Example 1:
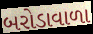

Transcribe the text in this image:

બરોડાવાળા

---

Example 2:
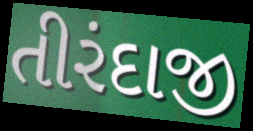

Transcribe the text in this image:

તીરંદાજી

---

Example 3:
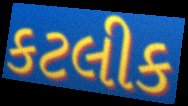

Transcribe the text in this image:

કટલીક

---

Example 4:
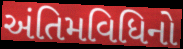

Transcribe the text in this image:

અંતિમવિધિનો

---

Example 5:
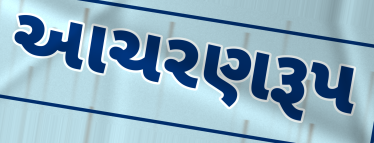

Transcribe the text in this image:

આચરણરૂપ